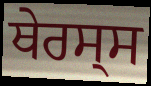
ਥੇਰਸ੍ਸ